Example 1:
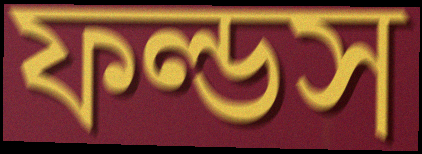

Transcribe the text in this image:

ফল্ডস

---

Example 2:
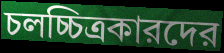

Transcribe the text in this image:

চলচ্চিত্রকারদের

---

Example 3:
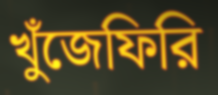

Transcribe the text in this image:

খুঁজেফিরি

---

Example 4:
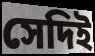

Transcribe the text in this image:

সেদিই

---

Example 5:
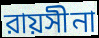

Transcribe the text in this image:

রায়সীনা